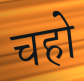
चहो